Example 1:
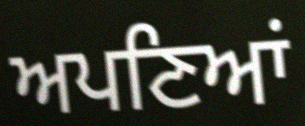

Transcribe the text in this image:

ਅਪਣਿਆਂ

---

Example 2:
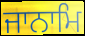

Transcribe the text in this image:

ਜਾਨਾਮਿ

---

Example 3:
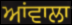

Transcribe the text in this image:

ਆਂਵਾਲਾ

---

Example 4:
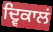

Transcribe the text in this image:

ਦ੍ਵਿਕਾਲਂ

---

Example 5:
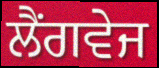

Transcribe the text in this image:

ਲੈਂਗਵੇਜ